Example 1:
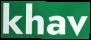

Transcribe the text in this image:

khav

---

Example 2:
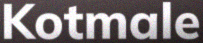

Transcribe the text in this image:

Kotmale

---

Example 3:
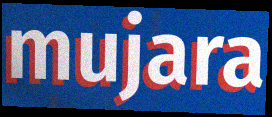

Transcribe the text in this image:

mujara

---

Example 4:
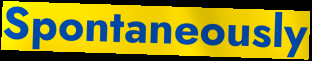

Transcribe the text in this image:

Spontaneously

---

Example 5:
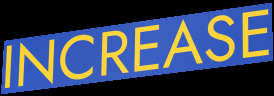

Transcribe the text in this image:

INCREASE